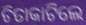
ଚିତାକାଟିଲେ